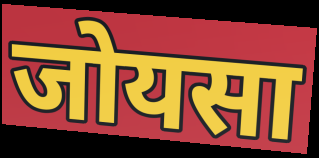
जोयसा